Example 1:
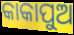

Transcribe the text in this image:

କାକାପୁଅ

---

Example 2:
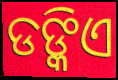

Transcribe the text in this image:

ଡଙ୍କିଏ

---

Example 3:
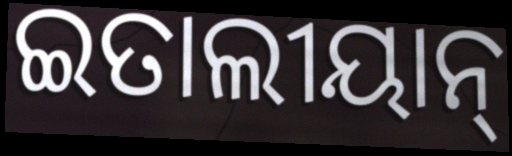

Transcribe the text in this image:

ଇତାଲୀୟାନ୍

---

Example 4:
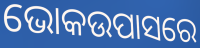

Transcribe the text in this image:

ଭୋକଉପାସରେ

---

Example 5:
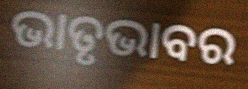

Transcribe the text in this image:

ଭାତୃଭାବର